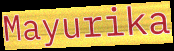
Mayurika